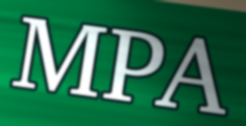
MPA